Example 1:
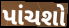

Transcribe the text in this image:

પાંચશો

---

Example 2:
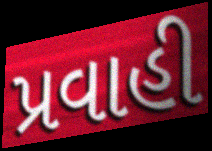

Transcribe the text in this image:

પ્રવાહી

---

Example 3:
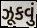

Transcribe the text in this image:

ઝૂકવું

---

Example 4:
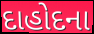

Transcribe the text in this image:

દાહોદના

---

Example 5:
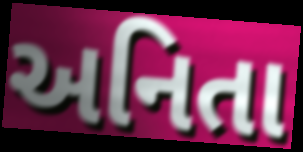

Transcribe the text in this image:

અનિતા